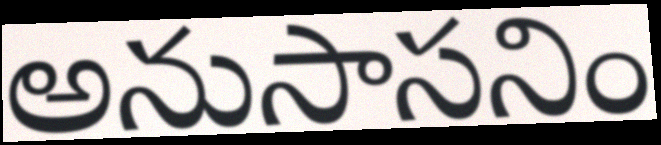
అనుసాసనిం